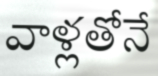
వాళ్లతోనే